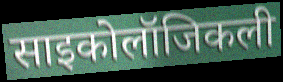
साइकोलॉजिकली